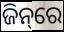
ଜିନ୍‌ରେ